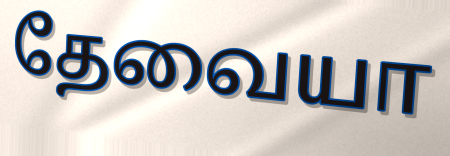
தேவையா